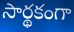
సార్థకంగా